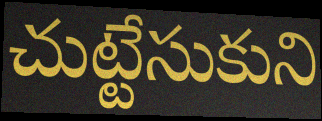
చుట్టేసుకుని